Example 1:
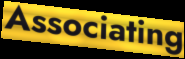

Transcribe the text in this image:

Associating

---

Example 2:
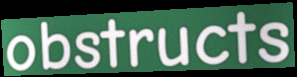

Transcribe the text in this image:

obstructs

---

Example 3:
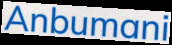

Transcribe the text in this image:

Anbumani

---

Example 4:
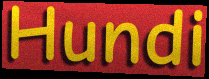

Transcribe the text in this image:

Hundi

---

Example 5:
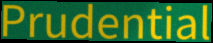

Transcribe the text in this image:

Prudential